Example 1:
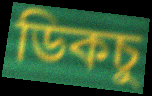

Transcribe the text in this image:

ডিকচু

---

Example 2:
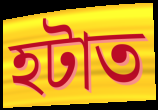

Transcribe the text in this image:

হটাত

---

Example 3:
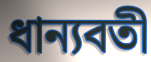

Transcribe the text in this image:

ধান্যবতী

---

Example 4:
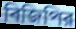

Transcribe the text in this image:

বিজিপির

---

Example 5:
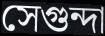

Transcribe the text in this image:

সেগুন্দা